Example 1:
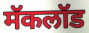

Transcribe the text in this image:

मॅकलॉड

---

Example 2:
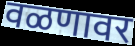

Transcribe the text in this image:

वळणावर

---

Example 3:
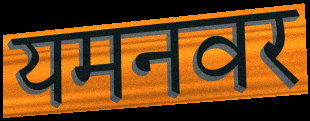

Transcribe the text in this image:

यमनवर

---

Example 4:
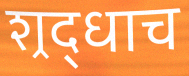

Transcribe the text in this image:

श्रद्धाच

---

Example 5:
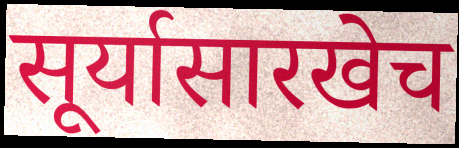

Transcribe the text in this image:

सूर्यासारखेच